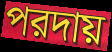
পরদায়